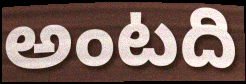
అంటది